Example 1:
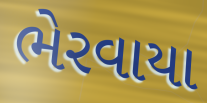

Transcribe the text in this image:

ભેરવાયા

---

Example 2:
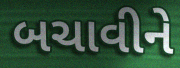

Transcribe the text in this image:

બચાવીને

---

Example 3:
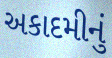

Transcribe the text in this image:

અકાદમીનું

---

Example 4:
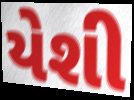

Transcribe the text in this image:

યેશી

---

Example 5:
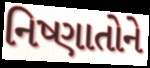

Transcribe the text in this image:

નિષ્ણાતોને